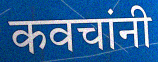
कवचांनी